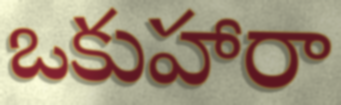
ఒకుహారా